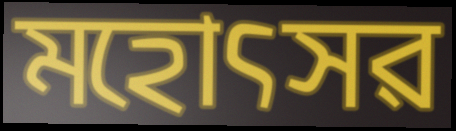
মহোৎসৱ